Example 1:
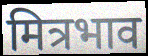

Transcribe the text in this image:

मित्रभाव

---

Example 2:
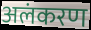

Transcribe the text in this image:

अलंकरण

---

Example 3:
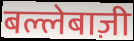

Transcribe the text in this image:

बल्लेबाज़ी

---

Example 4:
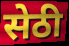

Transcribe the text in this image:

सेठी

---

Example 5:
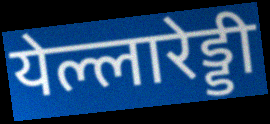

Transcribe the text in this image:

येल्लारेड्डी